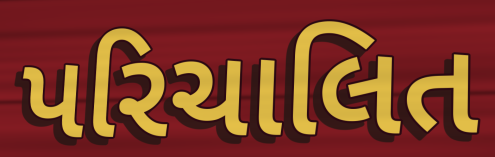
પરિચાલિત